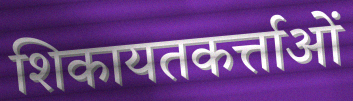
शिकायतकर्त्ताओं